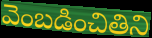
వెంబడించితిని